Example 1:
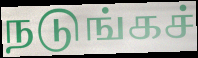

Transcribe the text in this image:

நடுங்கச்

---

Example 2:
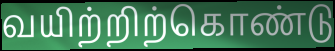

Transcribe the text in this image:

வயிற்றிற்கொண்டு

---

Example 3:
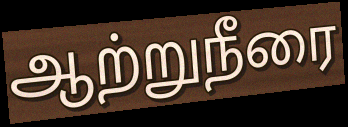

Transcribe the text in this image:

ஆற்றுநீரை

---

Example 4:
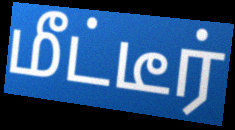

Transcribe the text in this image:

மீட்டீர்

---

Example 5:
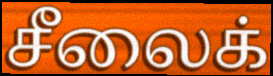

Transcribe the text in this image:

சீலைக்